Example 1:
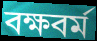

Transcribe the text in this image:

বক্ষবর্ম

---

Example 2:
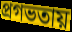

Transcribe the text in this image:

প্রগভতায়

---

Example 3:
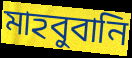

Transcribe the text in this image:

মাহবুবানি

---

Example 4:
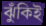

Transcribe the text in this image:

ঝুঁকিই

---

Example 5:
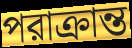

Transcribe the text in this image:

পরাক্রান্ত